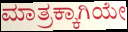
ಮಾತ್ರಕ್ಕಾಗಿಯೇ